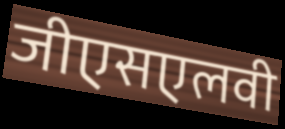
जीएसएलवी